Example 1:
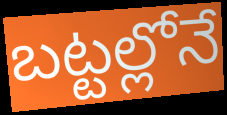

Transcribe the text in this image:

బట్టల్లోనే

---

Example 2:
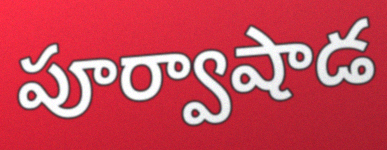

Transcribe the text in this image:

పూర్వాషాడ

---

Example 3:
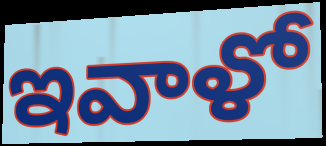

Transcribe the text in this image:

ఇవాళో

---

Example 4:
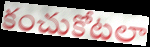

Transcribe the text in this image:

కంచుకోటలా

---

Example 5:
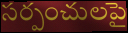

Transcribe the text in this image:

సర్పంచులపై